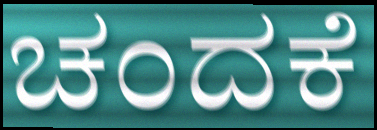
ಚಂದಕೆ